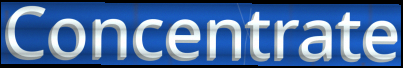
Concentrate